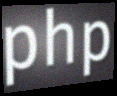
php